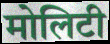
मोलिटी